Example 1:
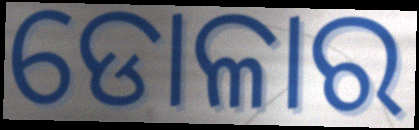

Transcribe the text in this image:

ଡୋଳାର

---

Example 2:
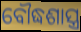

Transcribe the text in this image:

ବୌଦ୍ଧଶାସ୍ତ୍ର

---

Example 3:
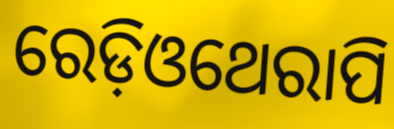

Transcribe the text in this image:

ରେଡ଼ିଓଥେରାପି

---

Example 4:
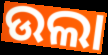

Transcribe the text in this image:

ଉଲା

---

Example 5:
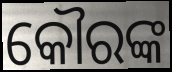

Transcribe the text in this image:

କୌରଙ୍କ